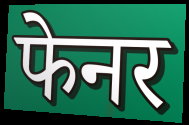
फेनर